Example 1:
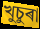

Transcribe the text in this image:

খুচুৰা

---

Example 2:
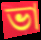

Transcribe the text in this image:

ভা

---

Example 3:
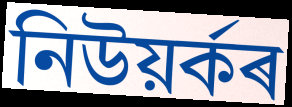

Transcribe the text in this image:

নিউয়ৰ্কৰ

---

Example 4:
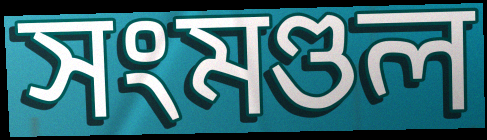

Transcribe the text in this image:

সংমণ্ডল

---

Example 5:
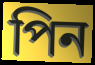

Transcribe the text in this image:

পিন